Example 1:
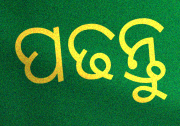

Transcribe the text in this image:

ପଢନ୍ତୁ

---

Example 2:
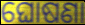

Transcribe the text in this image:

ଘୋଷଣା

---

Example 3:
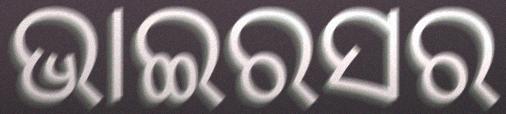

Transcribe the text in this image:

ଭାଇରସର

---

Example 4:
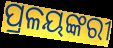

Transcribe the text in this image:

ପ୍ରଳୟଙ୍କରୀ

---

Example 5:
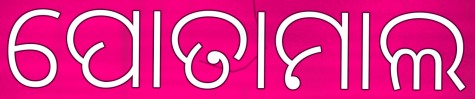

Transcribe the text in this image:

ପୋତାମାଲ